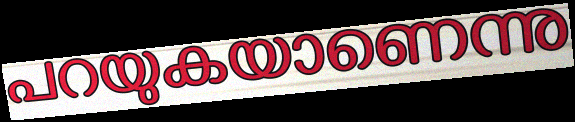
പറയുകയാണെന്നു